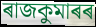
ৰাজকুমাৰৰ